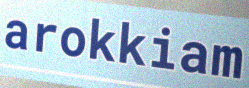
arokkiam